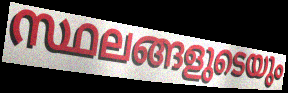
സ്ഥലങ്ങളുടെയും